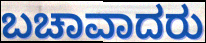
ಬಚಾವಾದರು